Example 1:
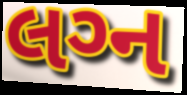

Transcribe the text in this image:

લગ્‍ન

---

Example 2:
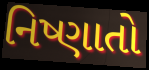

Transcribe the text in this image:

નિષ્ણાતો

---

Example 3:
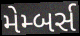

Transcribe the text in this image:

મેમ્બર્સ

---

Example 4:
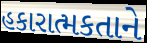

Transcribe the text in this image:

હકારાત્મકતાને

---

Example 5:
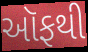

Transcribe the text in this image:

ઑફથી